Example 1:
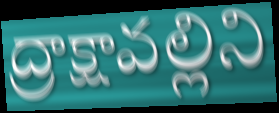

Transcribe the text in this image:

ద్రాక్షావల్లిని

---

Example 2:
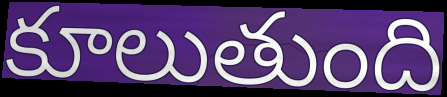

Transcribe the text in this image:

కూలుతుంది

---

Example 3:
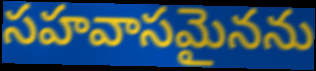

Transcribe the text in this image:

సహవాసమైనను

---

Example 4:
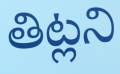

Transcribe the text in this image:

తిట్లని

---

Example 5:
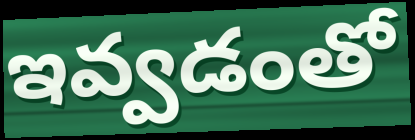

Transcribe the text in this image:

ఇవ్వడంతో